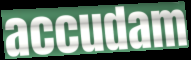
accudam